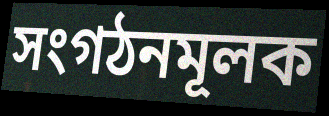
সংগঠনমূলক